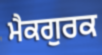
ਮੈਕਗੁਰਕ